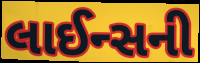
લાઈન્સની